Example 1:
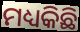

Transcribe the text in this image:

ମଧ୍ୟକିଛି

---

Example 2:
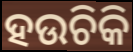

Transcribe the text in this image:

ହଉଚିକି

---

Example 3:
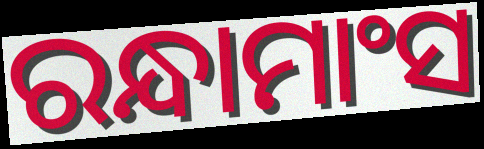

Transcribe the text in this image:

ରନ୍ଧାମାଂସ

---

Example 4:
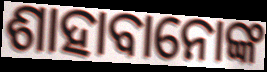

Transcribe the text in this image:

ଶାହାବାନୋଙ୍କ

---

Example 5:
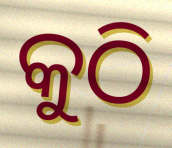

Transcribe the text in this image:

କୁଠି